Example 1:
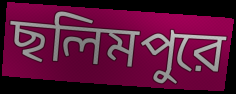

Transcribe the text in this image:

ছলিমপুরে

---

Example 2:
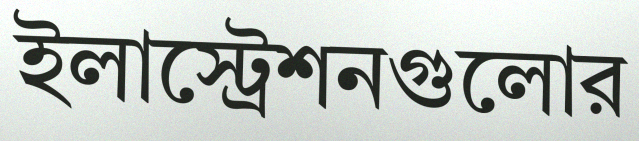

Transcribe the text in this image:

ইলাস্ট্রেশনগুলোর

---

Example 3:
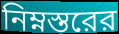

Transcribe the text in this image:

নিম্নস্তরের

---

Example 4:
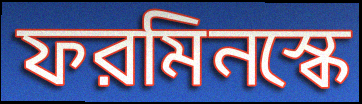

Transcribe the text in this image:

ফরমিনস্কে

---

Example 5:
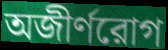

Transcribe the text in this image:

অজীর্ণরোগ